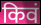
किवं